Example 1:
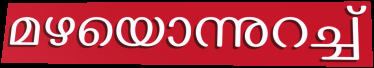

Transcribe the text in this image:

മഴയൊന്നുറച്ച്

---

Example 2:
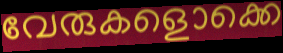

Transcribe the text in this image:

വേരുകളൊക്കെ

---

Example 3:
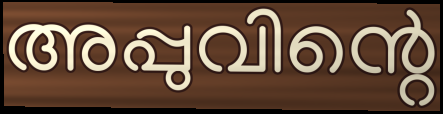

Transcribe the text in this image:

അപ്പുവിന്റെ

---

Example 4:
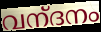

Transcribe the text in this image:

വന്‌ദനം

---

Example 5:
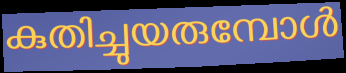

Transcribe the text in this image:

കുതിച്ചുയരുമ്പോൾ